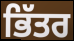
ਭਿੱਤਰ